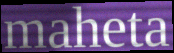
maheta